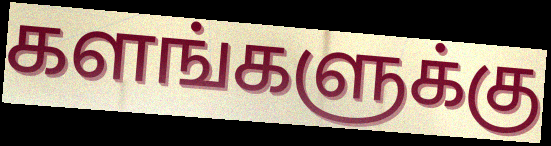
களங்களுக்கு